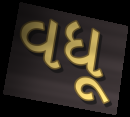
વધૂ